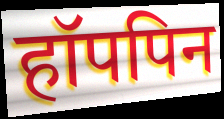
हॉपपिन